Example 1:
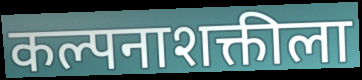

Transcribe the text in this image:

कल्पनाशक्तीला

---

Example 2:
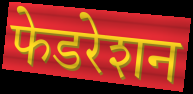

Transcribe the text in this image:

फेडरेशन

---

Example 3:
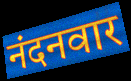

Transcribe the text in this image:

नंदनवार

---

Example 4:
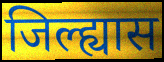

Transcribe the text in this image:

जिल्ह्यास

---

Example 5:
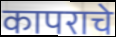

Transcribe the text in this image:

कापराचे